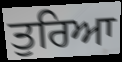
ਤੁਰਿਆ